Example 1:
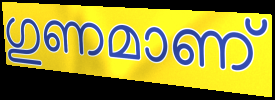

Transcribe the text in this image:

ഗുണമാണ്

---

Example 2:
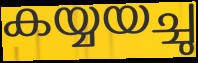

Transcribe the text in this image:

കയ്യയച്ചു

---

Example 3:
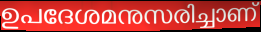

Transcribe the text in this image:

ഉപദേശമനുസരിച്ചാണ്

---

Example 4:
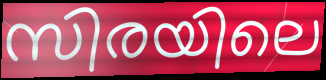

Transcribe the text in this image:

സിരയിലെ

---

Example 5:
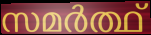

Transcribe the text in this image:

സമർത്ഥ്